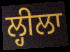
ਲ੍ਹੀਲਾ